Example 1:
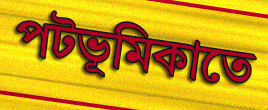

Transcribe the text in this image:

পটভূমিকাতে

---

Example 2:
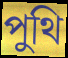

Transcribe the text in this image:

পুথি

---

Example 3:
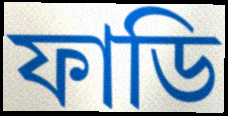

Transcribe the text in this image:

ফাডি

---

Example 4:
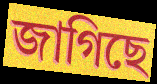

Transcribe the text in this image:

জাগিছে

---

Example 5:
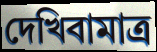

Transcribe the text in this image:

দেখিবামাত্র